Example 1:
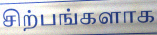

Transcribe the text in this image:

சிற்பங்களாக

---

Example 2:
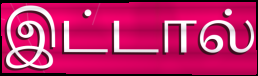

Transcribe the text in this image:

இட்டால்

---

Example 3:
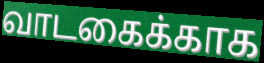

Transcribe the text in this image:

வாடகைக்காக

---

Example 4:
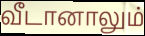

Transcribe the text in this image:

வீடானாலும்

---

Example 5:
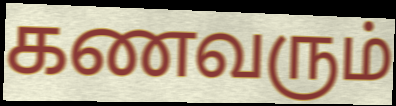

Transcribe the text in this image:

கணவரும்